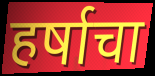
हर्षाचा